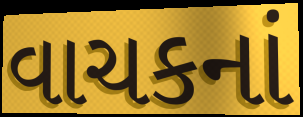
વાચકનાં